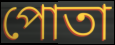
পোতা